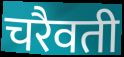
चरैवती